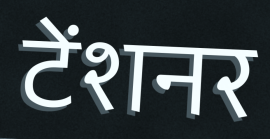
टेंशनर